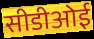
सीडीओई